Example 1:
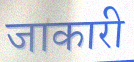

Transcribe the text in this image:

जाकारी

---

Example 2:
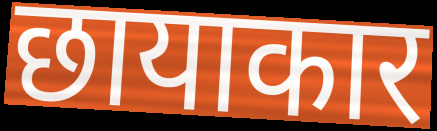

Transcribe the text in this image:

छायाकार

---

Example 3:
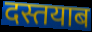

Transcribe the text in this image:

दस्तयाब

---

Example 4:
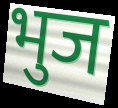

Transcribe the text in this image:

भुज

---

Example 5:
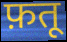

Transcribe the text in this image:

फ़तू